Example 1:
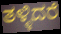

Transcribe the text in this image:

ತಳ್ಳಿದರೆ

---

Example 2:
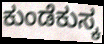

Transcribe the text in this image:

ಕುಂಡೆಕುಸ್ಕ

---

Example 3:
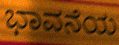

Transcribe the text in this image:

ಭಾವನೆಯ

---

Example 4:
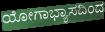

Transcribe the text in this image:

ಯೋಗಾಭ್ಯಾಸದಿಂದ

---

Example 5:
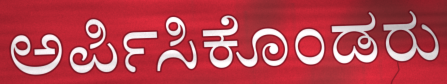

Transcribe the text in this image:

ಅರ್ಪಿಸಿಕೊಂಡರು